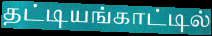
தட்டியங்காட்டில்